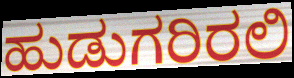
ಹುಡುಗರಿರಲಿ